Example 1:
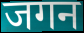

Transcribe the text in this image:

जगन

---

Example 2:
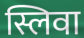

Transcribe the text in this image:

स्लिवा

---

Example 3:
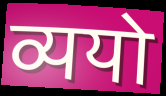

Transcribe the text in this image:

व्ययो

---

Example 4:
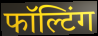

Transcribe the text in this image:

फॉल्टिंग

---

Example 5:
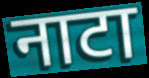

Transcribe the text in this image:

नाटा